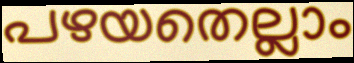
പഴയതെല്ലാം